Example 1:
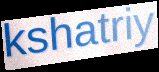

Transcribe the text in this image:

kshatriy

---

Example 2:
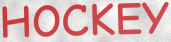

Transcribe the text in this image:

HOCKEY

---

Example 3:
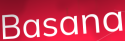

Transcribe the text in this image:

Basana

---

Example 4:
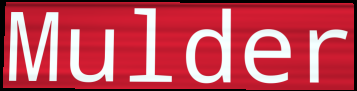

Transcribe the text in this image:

Mulder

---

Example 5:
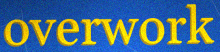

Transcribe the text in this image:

overwork